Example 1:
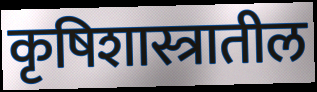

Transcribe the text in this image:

कृषिशास्त्रातील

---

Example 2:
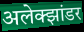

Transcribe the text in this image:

अलेक्झांडर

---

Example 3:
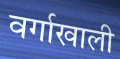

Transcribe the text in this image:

वर्गाखाली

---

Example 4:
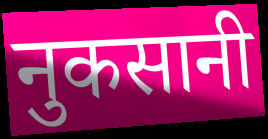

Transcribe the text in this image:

नुकसानी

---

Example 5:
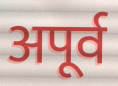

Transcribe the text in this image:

अपूर्व